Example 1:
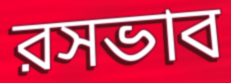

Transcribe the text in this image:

রসভাব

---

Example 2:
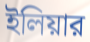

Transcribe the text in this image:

ইলিয়ার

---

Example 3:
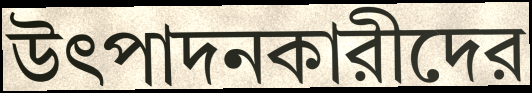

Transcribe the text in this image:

উৎপাদনকারীদের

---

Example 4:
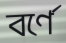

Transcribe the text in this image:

বর্ণে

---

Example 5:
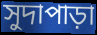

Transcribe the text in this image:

সুদাপাড়া